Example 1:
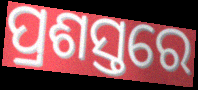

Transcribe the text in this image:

ପ୍ରଶସ୍ତରେ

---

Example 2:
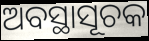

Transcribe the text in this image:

ଅବସ୍ଥାସୂଚକ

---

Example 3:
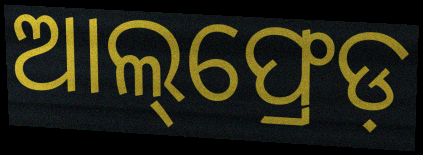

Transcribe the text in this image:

ଆଲ୍‌ଫ୍ରେଡ଼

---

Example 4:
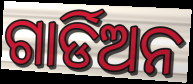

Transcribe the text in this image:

ଗାର୍ଡିଅନ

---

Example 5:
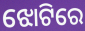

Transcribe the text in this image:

ଝୋଟିରେ